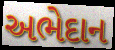
અભેદાન